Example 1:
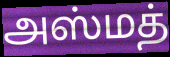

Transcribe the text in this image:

அஸ்மத்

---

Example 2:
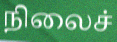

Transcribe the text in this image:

நிலைச்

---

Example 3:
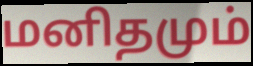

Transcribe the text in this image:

மனிதமும்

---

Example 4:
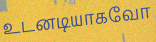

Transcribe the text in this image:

உடனடியாகவோ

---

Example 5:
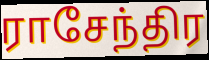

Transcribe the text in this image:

ராசேந்திர